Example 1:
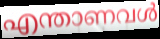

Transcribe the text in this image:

എന്താണവൾ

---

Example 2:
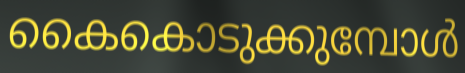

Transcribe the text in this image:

കൈകൊടുക്കുമ്പോൾ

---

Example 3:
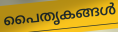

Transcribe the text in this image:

പൈതൃകങ്ങൾ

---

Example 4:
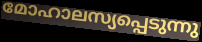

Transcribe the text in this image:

മോഹാലസ്യപ്പെടുന്നു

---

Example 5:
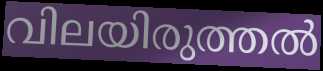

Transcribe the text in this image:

വിലയിരുത്തൽ